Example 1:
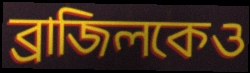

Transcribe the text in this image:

ব্রাজিলকেও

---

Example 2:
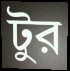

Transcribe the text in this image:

টুর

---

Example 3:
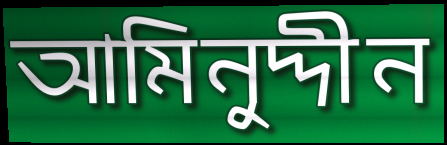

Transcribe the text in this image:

আমিনুদ্দীন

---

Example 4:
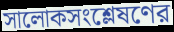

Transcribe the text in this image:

সালোকসংশ্লেষণের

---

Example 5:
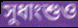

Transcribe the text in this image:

সুধাংশুও